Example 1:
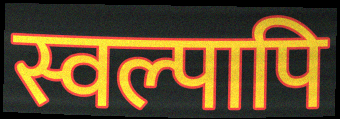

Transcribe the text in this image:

स्वल्पापि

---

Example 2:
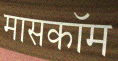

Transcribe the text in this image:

मासकॉम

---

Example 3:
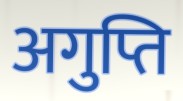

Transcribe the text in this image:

अगुप्ति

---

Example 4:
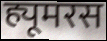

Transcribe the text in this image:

ह्यूमरस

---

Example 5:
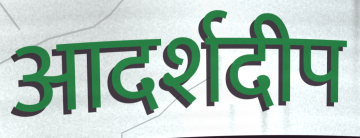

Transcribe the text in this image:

आदर्शदीप